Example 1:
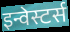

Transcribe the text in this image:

इन्वेस्टर्स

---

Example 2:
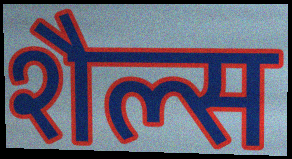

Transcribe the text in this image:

शैल्स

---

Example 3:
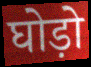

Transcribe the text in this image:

घोड़ो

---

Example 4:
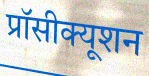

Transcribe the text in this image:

प्रॉसीक्यूशन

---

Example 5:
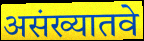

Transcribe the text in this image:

असंख्यातवे